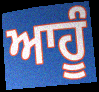
ਆਹੂੰ